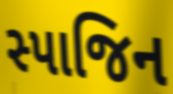
સ્પાજિન